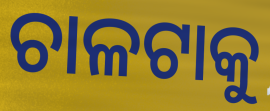
ଚାଳଟାକୁ